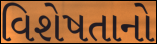
વિશેષતાનો